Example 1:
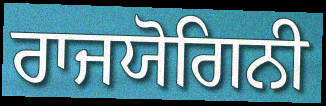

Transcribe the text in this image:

ਰਾਜਯੋਗਿਨੀ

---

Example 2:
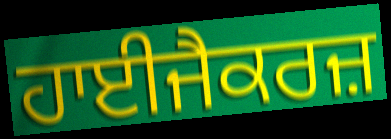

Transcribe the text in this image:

ਹਾਈਜੈਕਰਜ਼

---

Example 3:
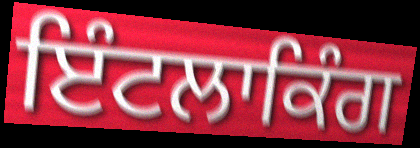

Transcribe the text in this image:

ਇੰਟਲਾਕਿੰਗ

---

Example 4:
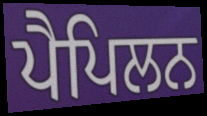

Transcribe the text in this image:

ਪੈਪਿਲਨ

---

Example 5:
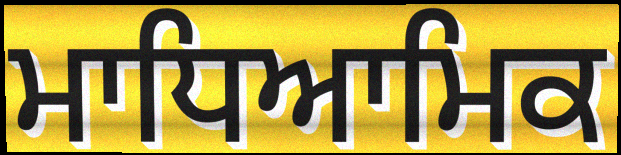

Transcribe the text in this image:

ਮਾਧਿਆਮਿਕ